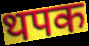
थपक